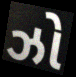
ઝો